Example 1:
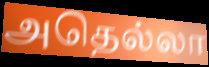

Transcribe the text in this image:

அதெல்லா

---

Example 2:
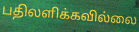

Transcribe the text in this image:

பதிலளிக்கவில்லை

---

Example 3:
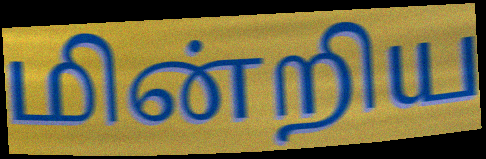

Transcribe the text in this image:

மின்றிய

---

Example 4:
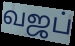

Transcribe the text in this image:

வஜப்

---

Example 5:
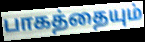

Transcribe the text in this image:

பாகத்தையும்